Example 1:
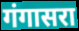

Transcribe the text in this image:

गंगासरा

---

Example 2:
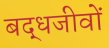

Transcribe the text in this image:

बद्धजीवों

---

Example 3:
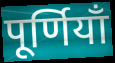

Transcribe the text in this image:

पूर्णियाँ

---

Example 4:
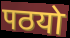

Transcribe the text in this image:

पठयो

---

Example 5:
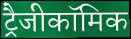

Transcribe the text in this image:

ट्रैजीकॉमिक